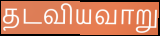
தடவியவாறு